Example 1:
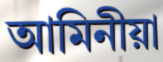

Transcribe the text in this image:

আমিনীয়া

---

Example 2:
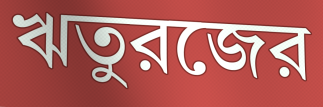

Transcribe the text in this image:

ঋতুরজের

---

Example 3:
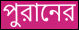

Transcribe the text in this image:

পুরানের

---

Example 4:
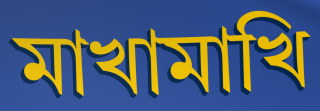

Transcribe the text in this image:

মাখামাখি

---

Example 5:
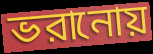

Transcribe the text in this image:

ভরানোয়